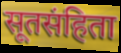
सूतसंहिता